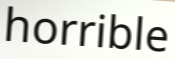
horrible